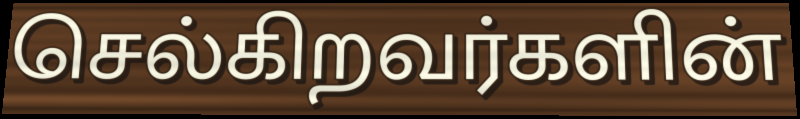
செல்கிறவர்களின்